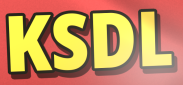
KSDL